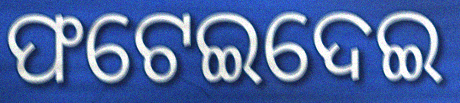
ଫଟେଇଦେଇ